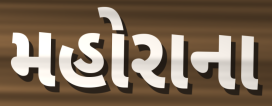
મહોરાના